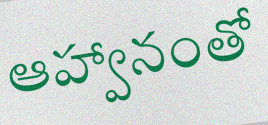
ఆహ్వానంతో